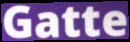
Gatte